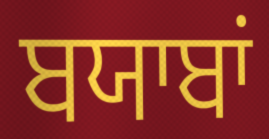
ਬਯਾਬਾਂ